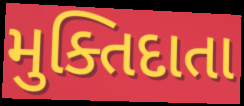
મુક્તિદાતા